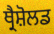
ਥ੍ਰੈਸ਼ੋਲਡ